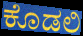
ಕೊಡಲಿ